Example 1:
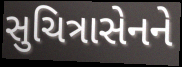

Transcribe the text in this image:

સુચિત્રાસેનને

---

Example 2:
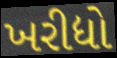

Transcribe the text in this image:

ખરીદ્યો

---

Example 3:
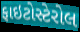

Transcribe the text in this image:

ફાઇટોસ્ટેરોલ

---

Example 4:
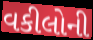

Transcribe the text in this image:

વકીલોની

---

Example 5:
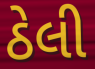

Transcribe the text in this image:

ઠેલી